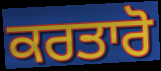
ਕਰਤਾਰੋ